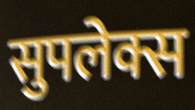
सुपलेक्स